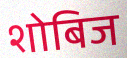
शोबिज